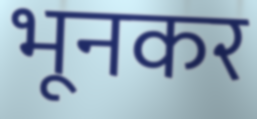
भूनकर